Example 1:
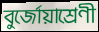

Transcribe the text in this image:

বুর্জোয়াশ্রেণী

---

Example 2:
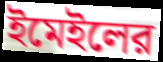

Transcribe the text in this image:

ইমেইলের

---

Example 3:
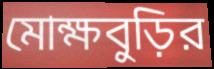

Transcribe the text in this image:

মোক্ষবুড়ির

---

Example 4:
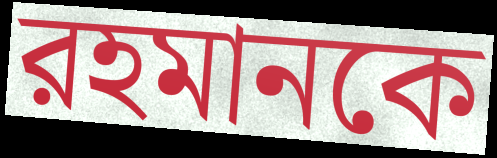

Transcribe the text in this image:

রহমানকে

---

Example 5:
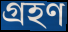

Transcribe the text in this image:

গ্রহণ